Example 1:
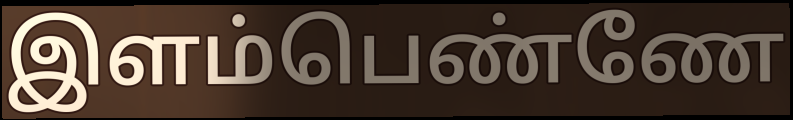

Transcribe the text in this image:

இளம்பெண்ணே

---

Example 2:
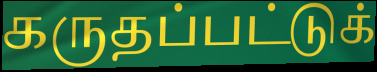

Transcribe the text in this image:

கருதப்பட்டுக்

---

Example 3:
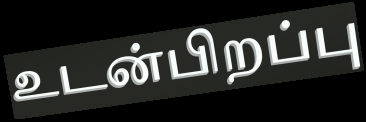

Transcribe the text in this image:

உடன்பிறப்பு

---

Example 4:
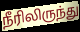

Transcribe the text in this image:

நீரிலிருந்து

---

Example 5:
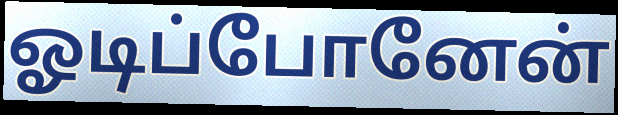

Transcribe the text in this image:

ஓடிப்போனேன்